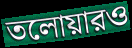
তলোয়ারও